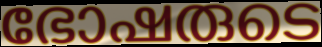
ഭോഷരുടെ